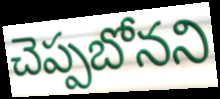
చెప్పబోనని